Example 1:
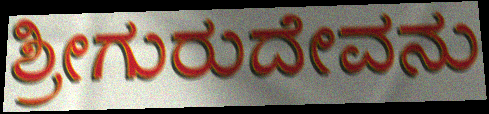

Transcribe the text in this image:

ಶ್ರೀಗುರುದೇವನು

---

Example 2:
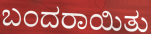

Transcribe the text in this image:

ಬಂದರಾಯಿತು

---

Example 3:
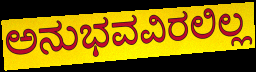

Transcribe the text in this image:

ಅನುಭವವಿರಲಿಲ್ಲ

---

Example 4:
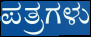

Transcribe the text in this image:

ಪತ್ರಗಳು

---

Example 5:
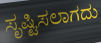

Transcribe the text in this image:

ಸೃಷ್ಟಿಸಲಾಗದು